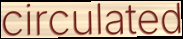
circulated